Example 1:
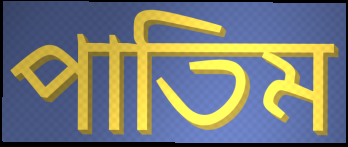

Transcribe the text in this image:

পাতিম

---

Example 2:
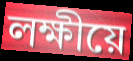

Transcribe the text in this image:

লক্ষীয়ে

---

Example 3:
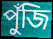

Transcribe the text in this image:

পুঁজি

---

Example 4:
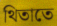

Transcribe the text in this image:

থিতাতে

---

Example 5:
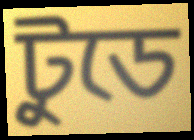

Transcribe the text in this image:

টুডে